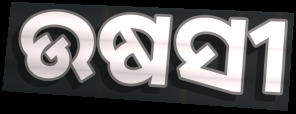
ଉଷସୀ